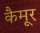
कैमूर